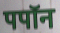
पपॉन